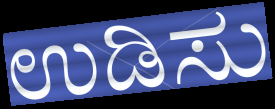
ಉಡಿಸು